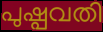
പുഷ്പവതി